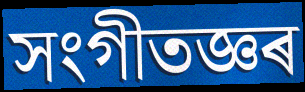
সংগীতজ্ঞৰ